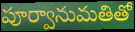
పూర్వానుమతితో